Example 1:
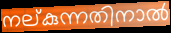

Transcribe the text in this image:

നല്കുന്നതിനാൽ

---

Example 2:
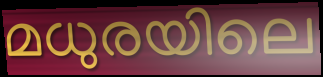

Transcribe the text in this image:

മധുരയിലെ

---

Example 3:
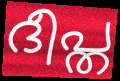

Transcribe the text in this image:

ദീപ്ത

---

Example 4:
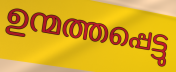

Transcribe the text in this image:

ഉന്മത്തപ്പെട്ടു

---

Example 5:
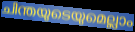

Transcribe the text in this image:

ചിന്തയുടെയുമെല്ലാം